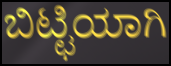
ಬಿಟ್ಟಿಯಾಗಿ